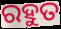
ରହୁତ